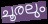
ചൂരലും